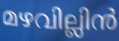
മഴവില്ലിൻ